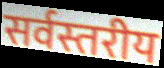
सर्वस्तरीय